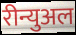
रीन्युअल